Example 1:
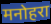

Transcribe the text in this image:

मनोहरा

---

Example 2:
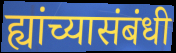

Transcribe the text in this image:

ह्यांच्यासंबंधी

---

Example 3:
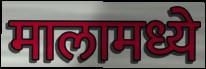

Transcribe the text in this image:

मालामध्ये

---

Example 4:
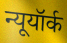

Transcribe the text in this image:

न्यूयॉर्क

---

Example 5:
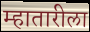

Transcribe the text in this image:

म्हातारीला